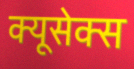
क्यूसेक्स